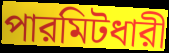
পারমিটধারী